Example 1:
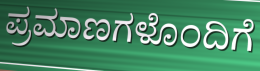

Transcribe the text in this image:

ಪ್ರಮಾಣಗಳೊಂದಿಗೆ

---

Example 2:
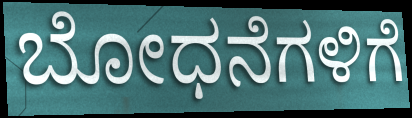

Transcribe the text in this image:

ಬೋಧನೆಗಳಿಗೆ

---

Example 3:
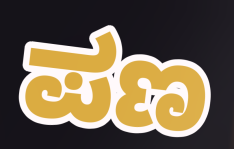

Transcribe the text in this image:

ಪಣ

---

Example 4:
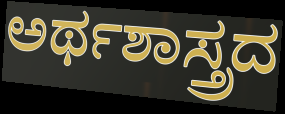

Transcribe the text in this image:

ಅರ್ಥಶಾಸ್ತ್ರದ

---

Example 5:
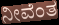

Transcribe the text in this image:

ನೀವೆಂತ